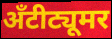
अँटीट्यूमर